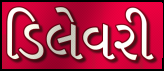
ડિલેવરી